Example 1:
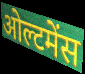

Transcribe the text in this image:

ओल्टमेंस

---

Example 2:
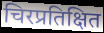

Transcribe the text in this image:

चिरप्रतिक्षित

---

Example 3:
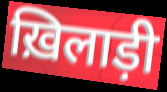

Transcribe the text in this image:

ख़िलाड़ी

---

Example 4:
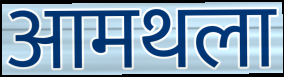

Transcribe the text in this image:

आमथला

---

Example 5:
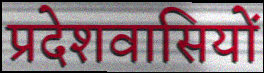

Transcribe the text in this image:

प्रदेशवासियों